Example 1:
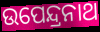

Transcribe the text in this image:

ଉପେନ୍ଦ୍ରନାଥ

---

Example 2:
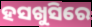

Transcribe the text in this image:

ହସଖୁସିରେ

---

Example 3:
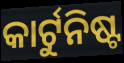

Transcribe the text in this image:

କାର୍ଟୁନିଷ୍ଟ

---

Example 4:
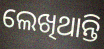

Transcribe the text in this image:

ଲେଖିଥାନ୍ତି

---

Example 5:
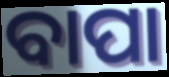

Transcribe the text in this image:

ବାପା